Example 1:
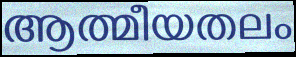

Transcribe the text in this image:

ആത്മീയതലം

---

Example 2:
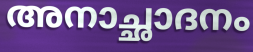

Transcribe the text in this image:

അനാച്ഛാദനം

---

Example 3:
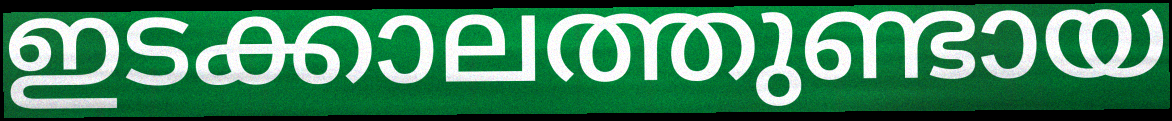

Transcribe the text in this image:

ഇടക്കാലത്തുണ്ടായ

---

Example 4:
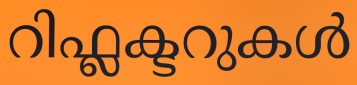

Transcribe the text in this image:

റിഫ്ലക്ടറുകൾ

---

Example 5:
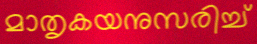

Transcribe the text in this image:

മാതൃകയനുസരിച്ച്